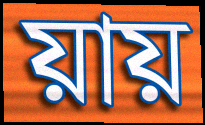
য়ায়